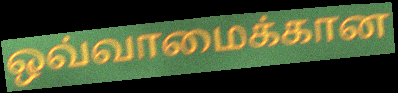
ஒவ்வாமைக்கான